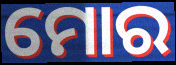
ମୋର